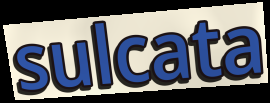
sulcata